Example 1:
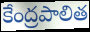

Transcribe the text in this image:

కేంద్రపాలిత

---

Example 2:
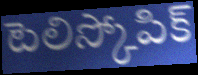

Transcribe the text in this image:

టెలిస్కోపిక్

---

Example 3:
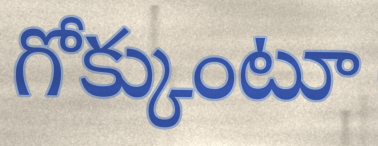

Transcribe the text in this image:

గోక్కుంటూ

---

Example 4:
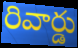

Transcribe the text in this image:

రివార్డు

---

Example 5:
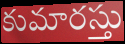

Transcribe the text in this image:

కుమారస్తు